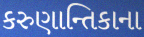
કરુણાન્તિકાના